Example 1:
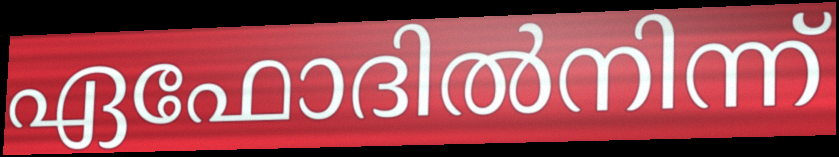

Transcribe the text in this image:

ഏഫോദിൽനിന്ന്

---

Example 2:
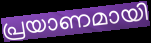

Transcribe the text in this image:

പ്രയാണമായി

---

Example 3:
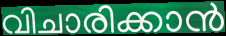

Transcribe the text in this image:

വിചാരിക്കാൻ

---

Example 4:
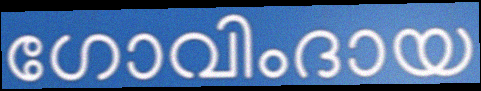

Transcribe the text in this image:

ഗോവിംദായ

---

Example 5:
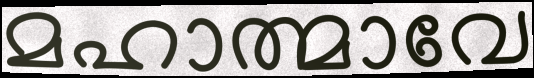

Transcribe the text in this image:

മഹാത്മാവേ